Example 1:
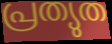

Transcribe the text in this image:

പ്രത്യുത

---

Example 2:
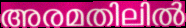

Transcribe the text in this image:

അരമതിലിൽ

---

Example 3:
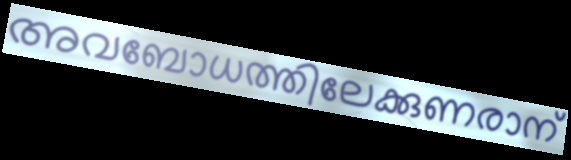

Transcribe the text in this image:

അവബോധത്തിലേക്കുണരാന്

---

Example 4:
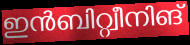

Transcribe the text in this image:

ഇൻബിറ്റ്വീനിങ്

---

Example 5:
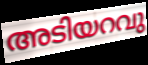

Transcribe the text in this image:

അടിയറവു